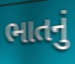
ભાતનું